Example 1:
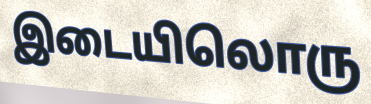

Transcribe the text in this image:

இடையிலொரு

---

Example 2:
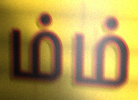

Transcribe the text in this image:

ம்ம்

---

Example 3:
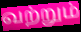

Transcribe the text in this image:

வற்றும்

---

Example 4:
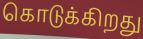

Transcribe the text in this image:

கொடுக்கிறது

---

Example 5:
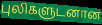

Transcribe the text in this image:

புலிகளுடனான